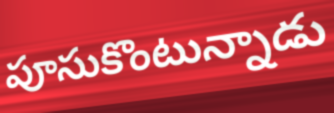
పూసుకొంటున్నాడు